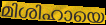
മിശിഹായെ